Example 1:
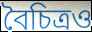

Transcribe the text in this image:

বৈচিত্রও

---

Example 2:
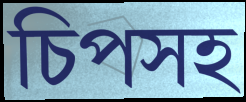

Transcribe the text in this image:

চিপসহ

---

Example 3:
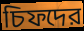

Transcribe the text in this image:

চিফদের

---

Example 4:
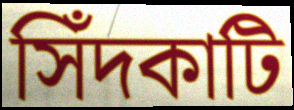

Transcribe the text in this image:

সিঁদকাটি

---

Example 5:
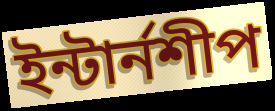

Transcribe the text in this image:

ইন্টার্নশীপ